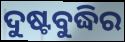
ଦୁଷ୍ଟବୁଦ୍ଧିର